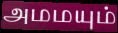
அமமயும்